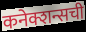
कनेक्शन्सची